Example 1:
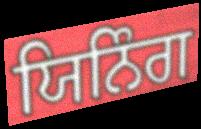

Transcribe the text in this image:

ਯਿਨਿੰਗ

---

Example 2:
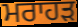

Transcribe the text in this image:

ਮਰਾਹੜ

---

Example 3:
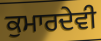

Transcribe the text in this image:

ਕੁਮਾਰਦੇਵੀ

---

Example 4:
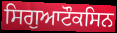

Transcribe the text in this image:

ਸਿਗੁਆਟੌਕਸਿਨ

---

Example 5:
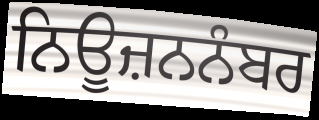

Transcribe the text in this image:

ਨਿਊਜ਼ਨਨੰਬਰ